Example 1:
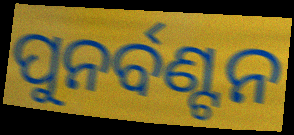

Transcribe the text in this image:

ପୁନର୍ବଣ୍ଟନ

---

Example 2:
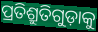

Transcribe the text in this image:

ପ୍ରତିଶ୍ରୁତିଗୁଡ଼ାକୁ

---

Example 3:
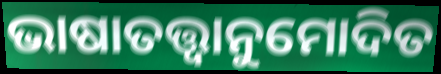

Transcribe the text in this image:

ଭାଷାତତ୍ତ୍ୱାନୁମୋଦିତ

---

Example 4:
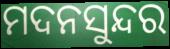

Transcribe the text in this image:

ମଦନସୁନ୍ଦର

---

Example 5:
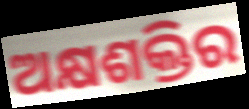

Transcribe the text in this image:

ଅକ୍ଷଶକ୍ତିର